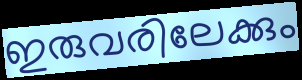
ഇരുവരിലേക്കും